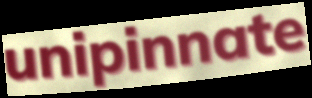
unipinnate